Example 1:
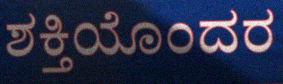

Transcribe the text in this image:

ಶಕ್ತಿಯೊಂದರ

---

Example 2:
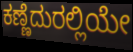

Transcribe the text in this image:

ಕಣ್ಣೆದುರಲ್ಲಿಯೇ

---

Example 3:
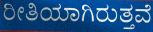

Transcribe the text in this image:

ರೀತಿಯಾಗಿರುತ್ತವೆ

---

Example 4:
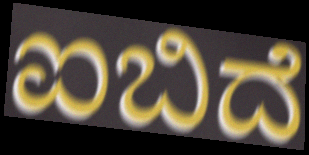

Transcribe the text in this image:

ಐಬಿದೆ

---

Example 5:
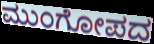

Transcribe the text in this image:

ಮುಂಗೋಪದ